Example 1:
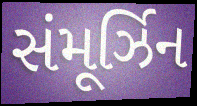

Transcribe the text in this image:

સંમૂર્ઝિન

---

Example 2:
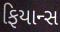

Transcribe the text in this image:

ફિયાન્સ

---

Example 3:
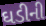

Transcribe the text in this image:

ઘડીની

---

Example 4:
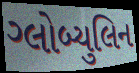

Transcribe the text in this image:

ગ્લોબ્યુલિન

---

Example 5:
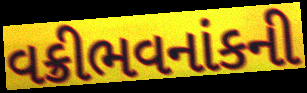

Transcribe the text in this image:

વક્રીભવનાંકની